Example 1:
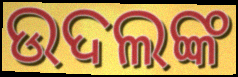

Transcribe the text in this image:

ଉଦଲଙ୍କ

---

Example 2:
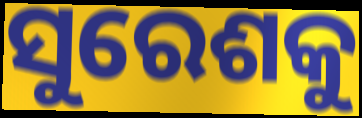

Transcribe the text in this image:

ସୁରେଶକୁ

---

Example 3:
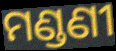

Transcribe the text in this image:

ମଣ୍ଡଣୀ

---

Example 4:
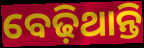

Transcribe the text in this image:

ବେଢ଼ିଥାନ୍ତି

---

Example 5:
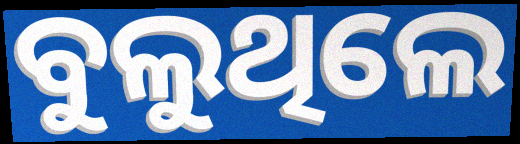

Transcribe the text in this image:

ବୁଲୁଥିଲେ